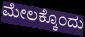
ಮೇಲಕ್ಕೊಂದು